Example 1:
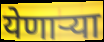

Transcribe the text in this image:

येणार्‍या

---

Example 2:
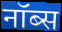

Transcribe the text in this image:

नॉब्स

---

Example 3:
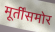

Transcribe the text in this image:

मूर्तींसमोर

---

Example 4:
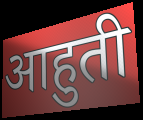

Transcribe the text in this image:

आहुती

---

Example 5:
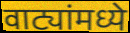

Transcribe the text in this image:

वाट्यांमध्ये